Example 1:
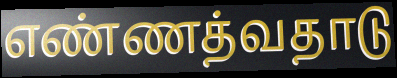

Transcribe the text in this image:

எண்ணத்வதாடு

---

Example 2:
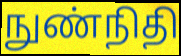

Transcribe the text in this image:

நுண்நிதி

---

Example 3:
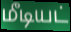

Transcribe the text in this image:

மீடியட்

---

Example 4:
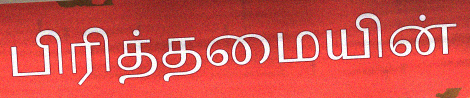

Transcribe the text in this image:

பிரித்தமையின்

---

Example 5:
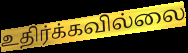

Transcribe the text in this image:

உதிர்க்கவில்லை